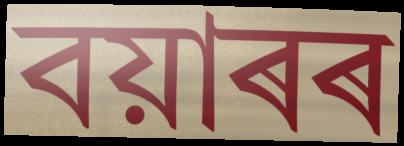
বয়াৰৰ